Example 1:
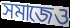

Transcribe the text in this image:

সমাজেও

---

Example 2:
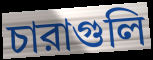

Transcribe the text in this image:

চারাগুলি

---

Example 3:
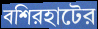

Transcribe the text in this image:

বশিরহাটের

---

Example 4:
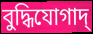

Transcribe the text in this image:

বুদ্ধিযোগাদ্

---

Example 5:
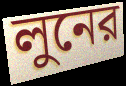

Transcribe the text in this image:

লুনের